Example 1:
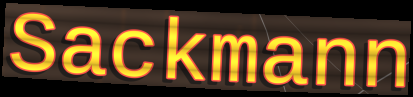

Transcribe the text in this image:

Sackmann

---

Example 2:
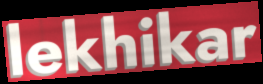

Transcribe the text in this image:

lekhikar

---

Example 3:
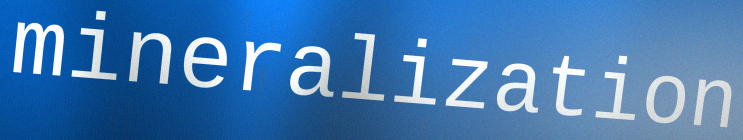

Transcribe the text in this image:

mineralization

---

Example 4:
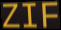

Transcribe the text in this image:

ZIF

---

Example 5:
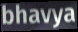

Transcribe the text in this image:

bhavya